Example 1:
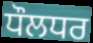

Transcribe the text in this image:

ਧੌਲਧਰ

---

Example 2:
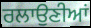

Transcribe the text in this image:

ਰਲਾਉਣੀਆਂ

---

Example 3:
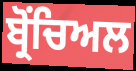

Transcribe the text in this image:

ਬ੍ਰੋਂਚਿਅਲ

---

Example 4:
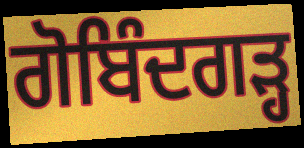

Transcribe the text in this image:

ਗੋਬਿੰਦਗੜ੍ਹ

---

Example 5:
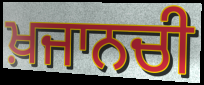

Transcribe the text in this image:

ਖ਼ਜਾਨਚੀ